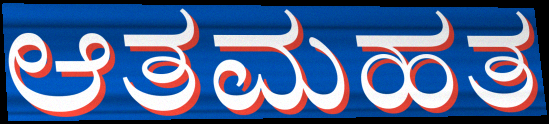
ಆತಮಹತ